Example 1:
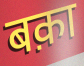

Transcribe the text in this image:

बक़ा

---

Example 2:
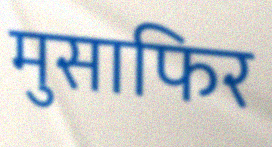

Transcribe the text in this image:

मुसाफिर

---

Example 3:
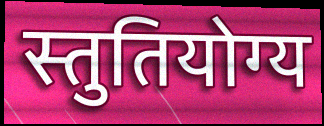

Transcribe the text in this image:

स्तुतियोग्य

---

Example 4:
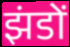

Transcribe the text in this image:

झंडों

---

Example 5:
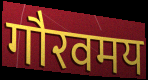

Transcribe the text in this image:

गौरवमय